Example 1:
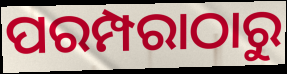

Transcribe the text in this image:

ପରମ୍ପରାଠାରୁ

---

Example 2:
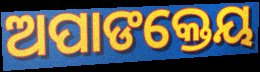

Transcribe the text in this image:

ଅପାଙକ୍ତେୟ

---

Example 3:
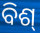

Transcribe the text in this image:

ବିଶ୍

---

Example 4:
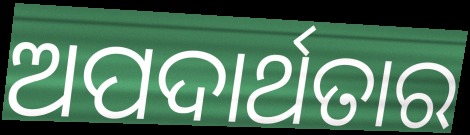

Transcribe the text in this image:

ଅପଦାର୍ଥତାର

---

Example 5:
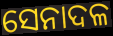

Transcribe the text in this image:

ସେନାଦଳ